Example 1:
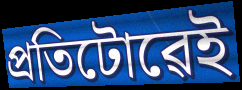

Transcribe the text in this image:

প্ৰতিটোৱেই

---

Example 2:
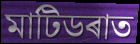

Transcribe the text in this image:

মাটিডৰাত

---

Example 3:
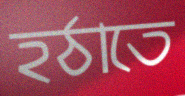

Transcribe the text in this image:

হঠাতে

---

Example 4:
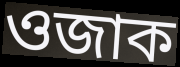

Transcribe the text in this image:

ওজাক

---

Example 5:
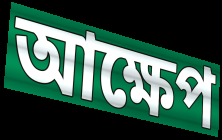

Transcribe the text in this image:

আক্ষেপ